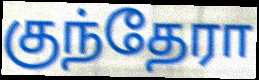
குந்தேரா